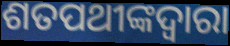
ଶତପଥୀଙ୍କଦ୍ୱାରା